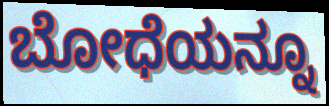
ಬೋಧೆಯನ್ನೂ